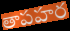
తాపహర